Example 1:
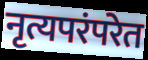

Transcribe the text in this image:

नृत्यपरंपरेत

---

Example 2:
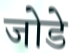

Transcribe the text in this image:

जोडे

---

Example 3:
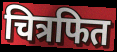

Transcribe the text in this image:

चित्रफित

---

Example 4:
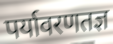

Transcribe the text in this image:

पर्यावरणतज्ञ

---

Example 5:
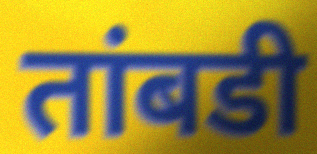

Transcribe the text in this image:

तांबडी